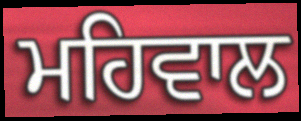
ਮਹਿਵਾਲ